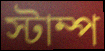
স্টাম্প